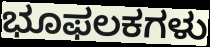
ಭೂಫಲಕಗಳು